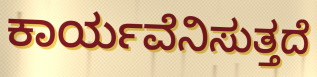
ಕಾರ್ಯವೆನಿಸುತ್ತದೆ